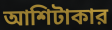
আশিটাকার